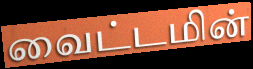
வைட்டமின்